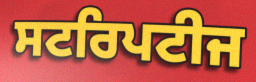
ਸਟਰਿਪਟੀਜ